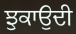
ਝੁਕਾਉਦੀ